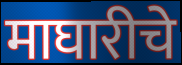
माघारीचे